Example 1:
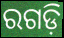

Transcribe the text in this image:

ରଗଡ଼ି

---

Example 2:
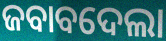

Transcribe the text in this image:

ଜବାବଦେଲା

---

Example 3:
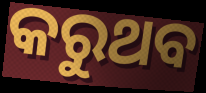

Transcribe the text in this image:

କରୁଥବ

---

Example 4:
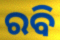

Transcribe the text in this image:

ରବି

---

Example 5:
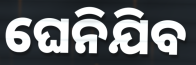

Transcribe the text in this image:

ଘେନିଯିବ